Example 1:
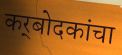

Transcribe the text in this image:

कर्बोदकांचा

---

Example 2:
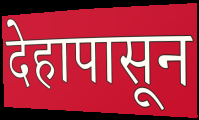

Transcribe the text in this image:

देहापासून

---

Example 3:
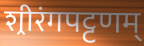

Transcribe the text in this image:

श्रीरंगपट्टणम्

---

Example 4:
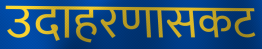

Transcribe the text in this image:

उदाहरणासकट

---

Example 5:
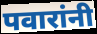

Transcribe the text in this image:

पवारांनी